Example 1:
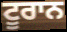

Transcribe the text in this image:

ਟੂਰਾਨ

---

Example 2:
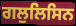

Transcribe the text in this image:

ਗਲੁਲਿਸਿਨ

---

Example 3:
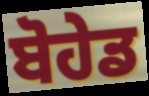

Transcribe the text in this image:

ਬੋਹੇਡ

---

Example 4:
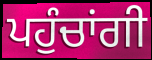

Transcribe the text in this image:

ਪਹੁੰਚਾਂਗੀ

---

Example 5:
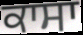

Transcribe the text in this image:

ਕਾਸਾ